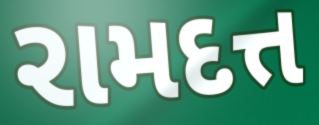
રામદત્ત